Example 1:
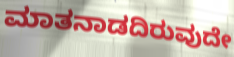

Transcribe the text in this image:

ಮಾತನಾಡದಿರುವುದೇ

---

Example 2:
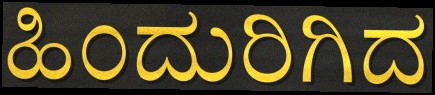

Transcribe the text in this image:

ಹಿಂದುರಿಗಿದ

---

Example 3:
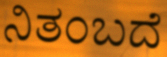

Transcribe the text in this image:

ನಿತಂಬದೆ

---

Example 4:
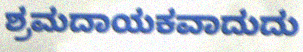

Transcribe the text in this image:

ಶ್ರಮದಾಯಕವಾದುದು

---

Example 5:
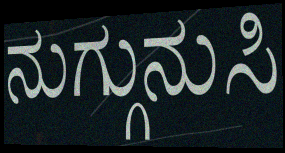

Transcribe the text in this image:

ನುಗ್ಗುನುಸಿ